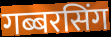
गब्बरसिंग